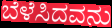
ಬೆಳೆಸಿದವನು